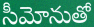
సీమోనుతో